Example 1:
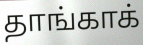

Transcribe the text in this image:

தாங்காக்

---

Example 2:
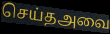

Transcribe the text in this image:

செய்தஅவை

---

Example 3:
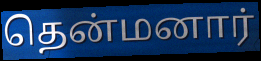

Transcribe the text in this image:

தென்மனார்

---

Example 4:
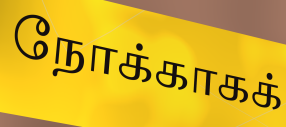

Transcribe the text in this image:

நோக்காகக்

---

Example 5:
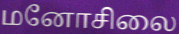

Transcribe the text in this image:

மனோசிலை